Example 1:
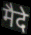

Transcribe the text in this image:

मैदे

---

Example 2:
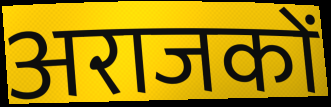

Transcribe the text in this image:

अराजकों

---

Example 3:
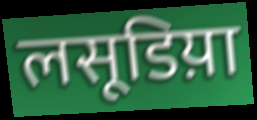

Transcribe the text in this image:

लसूडिय़ा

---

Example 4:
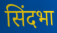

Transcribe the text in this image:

सिंदभा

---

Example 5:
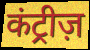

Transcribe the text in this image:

कंट्रीज़